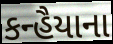
કન્હૈયાના